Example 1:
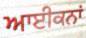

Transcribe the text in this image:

ਆਈਕਨਾਂ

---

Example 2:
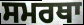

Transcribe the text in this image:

ਸਮਰਥਾ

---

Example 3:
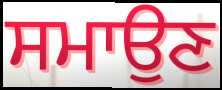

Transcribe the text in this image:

ਸਮਾਉਣ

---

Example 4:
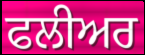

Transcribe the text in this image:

ਫਲੀਅਰ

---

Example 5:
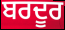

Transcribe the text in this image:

ਬਰਦੂਰ